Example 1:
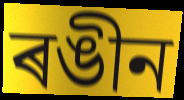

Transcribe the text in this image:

ৰঙীন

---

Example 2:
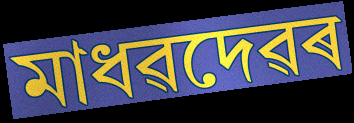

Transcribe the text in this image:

মাধৱদেৱৰ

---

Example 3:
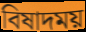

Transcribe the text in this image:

বিষাদময়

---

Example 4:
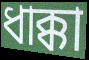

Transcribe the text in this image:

ধাক্কা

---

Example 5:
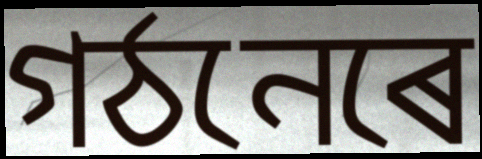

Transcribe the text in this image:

গঠনেৰে